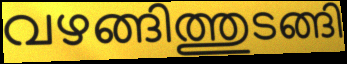
വഴങ്ങിത്തുടങ്ങി